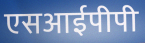
एसआईपीपी